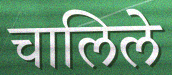
चालिले